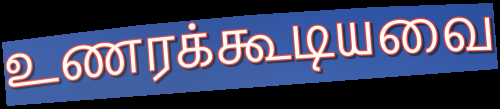
உணரக்கூடியவை